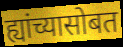
ह्यांच्यासोबत